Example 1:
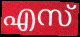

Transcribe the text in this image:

എസ്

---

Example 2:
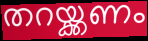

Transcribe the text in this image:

തറയ്ക്കണം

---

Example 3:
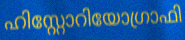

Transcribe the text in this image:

ഹിസ്റ്റോറിയോഗ്രാഫി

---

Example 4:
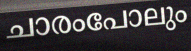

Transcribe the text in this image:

ചാരംപോലും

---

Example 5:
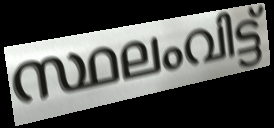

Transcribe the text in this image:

സ്ഥലംവിട്ട്